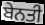
ਬੇਨਤੀ